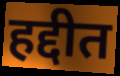
हद्दीत